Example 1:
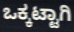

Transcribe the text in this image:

ಒಕ್ಕಟ್ಟಾಗಿ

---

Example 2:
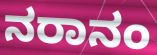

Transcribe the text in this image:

ನರಾನಂ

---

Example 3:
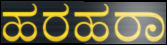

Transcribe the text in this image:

ಹರಹರಾ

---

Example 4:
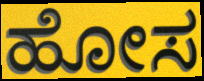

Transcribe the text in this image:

ಹೋಸ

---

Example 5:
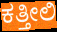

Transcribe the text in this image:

ಕತ್ತೀಲಿ